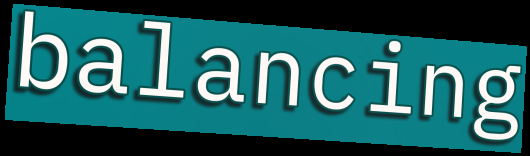
balancing